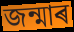
জন্মাৰ